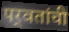
पर्वतांची